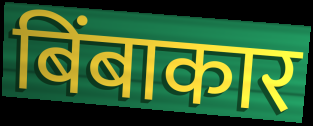
बिंबाकार